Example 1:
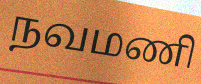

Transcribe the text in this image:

நவமணி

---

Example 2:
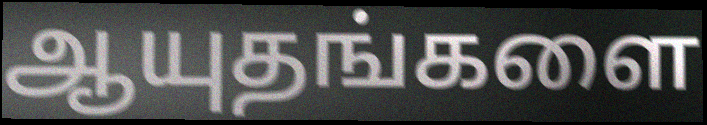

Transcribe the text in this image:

ஆயுதங்களை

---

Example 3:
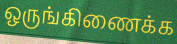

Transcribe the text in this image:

ஒருங்கிணைக்க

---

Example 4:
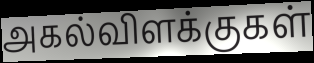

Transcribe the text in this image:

அகல்விளக்குகள்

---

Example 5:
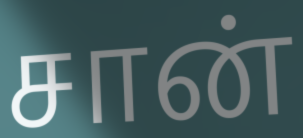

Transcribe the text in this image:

சான்